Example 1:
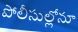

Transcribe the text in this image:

పోలీసుల్లోనూ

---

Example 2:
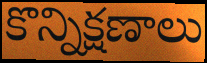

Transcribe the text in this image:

కొన్నిక్షణాలు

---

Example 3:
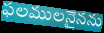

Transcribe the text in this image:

ఫలములనైనను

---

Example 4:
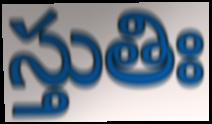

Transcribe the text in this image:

స్తుతిః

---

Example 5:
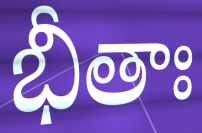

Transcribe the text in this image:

భీతాః